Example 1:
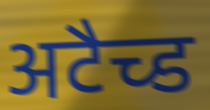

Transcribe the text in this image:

अटैच्ड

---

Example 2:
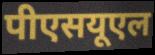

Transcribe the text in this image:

पीएसयूएल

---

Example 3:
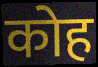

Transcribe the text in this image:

कोह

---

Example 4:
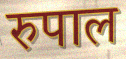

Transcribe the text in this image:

रुपाल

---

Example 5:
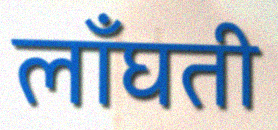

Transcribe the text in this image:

लाँघती